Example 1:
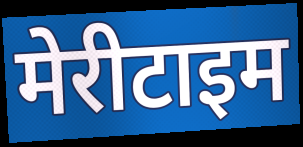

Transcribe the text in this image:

मेरीटाइम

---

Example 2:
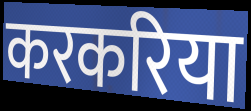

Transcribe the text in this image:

करकरिया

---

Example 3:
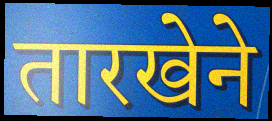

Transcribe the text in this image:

तारखेने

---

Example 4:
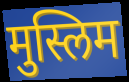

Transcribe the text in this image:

मुस्लिम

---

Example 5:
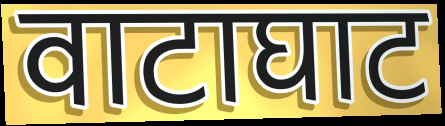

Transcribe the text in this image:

वाटाघाट